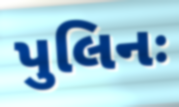
પુલિનઃ